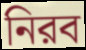
নিরব